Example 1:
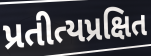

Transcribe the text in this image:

પ્રતીત્યપ્રક્ષિત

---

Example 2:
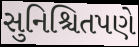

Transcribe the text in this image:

સુનિશ્ચિતપણે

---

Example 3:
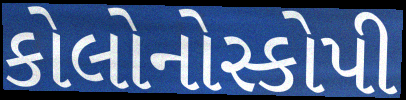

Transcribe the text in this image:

કોલોનોસ્કોપી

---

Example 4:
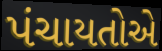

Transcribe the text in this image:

પંચાયતોએ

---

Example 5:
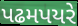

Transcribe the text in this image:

પઢમપયરે